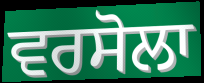
ਵਰਸੋਲਾ